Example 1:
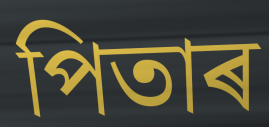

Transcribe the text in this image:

পিতাৰ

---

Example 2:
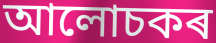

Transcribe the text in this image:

আলোচকৰ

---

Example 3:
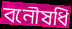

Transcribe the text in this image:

বনৌষধি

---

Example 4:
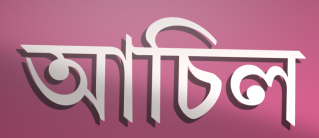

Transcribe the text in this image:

আচিল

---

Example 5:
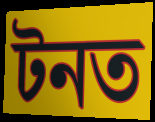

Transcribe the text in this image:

টনত